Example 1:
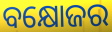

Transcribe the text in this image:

ବକ୍ଷୋଜର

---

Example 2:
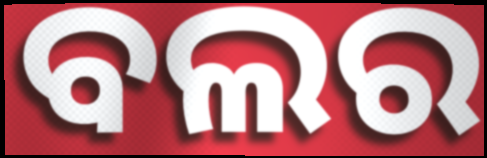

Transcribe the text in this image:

ବଲର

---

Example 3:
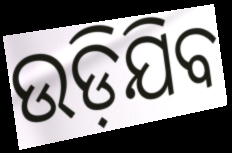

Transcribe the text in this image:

ଉଡ଼ିଯିବ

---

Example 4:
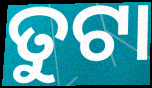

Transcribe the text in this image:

ତୁଟା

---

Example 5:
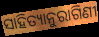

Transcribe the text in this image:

ସାହିତ୍ୟାନୁରାଗିଣୀ